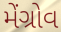
મેંગ્રોવ